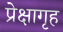
प्रेक्षागृह